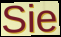
Sie